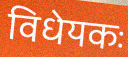
विधेयकः